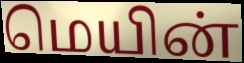
மெயின்